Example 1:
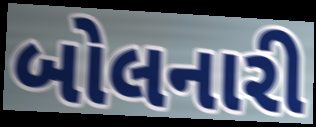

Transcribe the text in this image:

બોલનારી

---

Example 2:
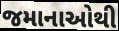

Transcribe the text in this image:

જમાનાઓથી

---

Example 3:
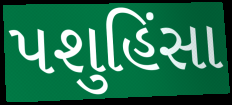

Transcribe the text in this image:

પશુહિંસા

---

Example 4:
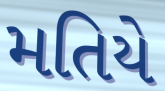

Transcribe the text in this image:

મતિયે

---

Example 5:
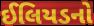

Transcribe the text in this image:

ઈલિયડનો